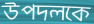
উপদলকে